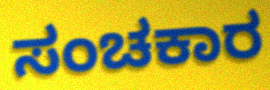
ಸಂಚಕಾರ